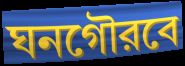
ঘনগৌরবে